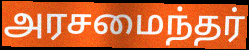
அரசமைந்தர்